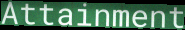
Attainment